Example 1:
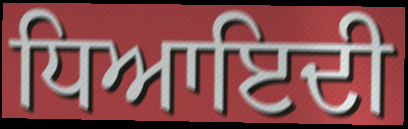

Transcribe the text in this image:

ਧਿਆਇਦੀ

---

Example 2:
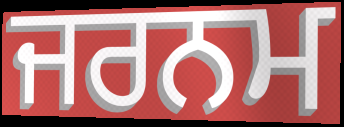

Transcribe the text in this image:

ਜਰਨਮ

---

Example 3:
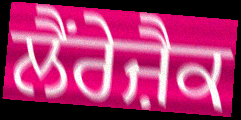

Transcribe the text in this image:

ਲੈਂਰੇਜ਼ੈਕ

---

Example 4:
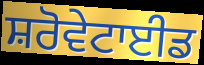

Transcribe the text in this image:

ਸ਼ਰੋਵੇਟਾਈਡ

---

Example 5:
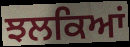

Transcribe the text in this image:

ਝਲਕਿਆਂ